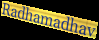
Radhamadhav